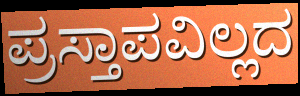
ಪ್ರಸ್ತಾಪವಿಲ್ಲದ